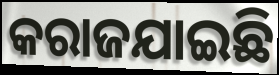
କରାଜଯାଇଛି